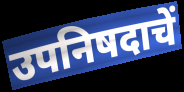
उपनिषदाचें